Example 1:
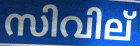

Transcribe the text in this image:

സിവില്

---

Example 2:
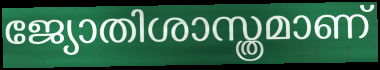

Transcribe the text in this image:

ജ്യോതിശാസ്ത്രമാണ്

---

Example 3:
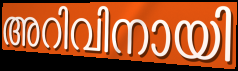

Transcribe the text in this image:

അറിവിനായി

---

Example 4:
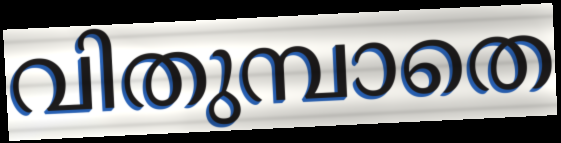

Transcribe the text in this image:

വിതുമ്പാതെ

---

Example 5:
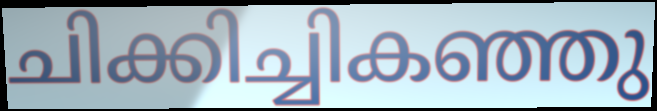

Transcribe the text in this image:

ചിക്കിച്ചികഞ്ഞു